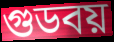
গুডবয়